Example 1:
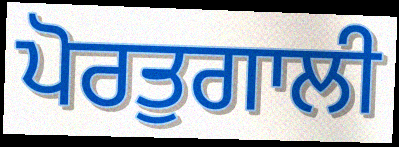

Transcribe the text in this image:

ਪੋਰਤੁਗਾਲੀ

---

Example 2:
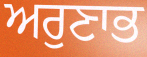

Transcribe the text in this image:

ਅਰੁਣਾਭ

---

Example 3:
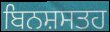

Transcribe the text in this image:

ਬਿਨਸ਼ਸਤਹ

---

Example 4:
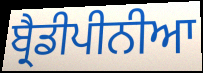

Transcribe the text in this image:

ਬ੍ਰੈਡੀਪੀਨੀਆ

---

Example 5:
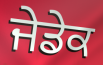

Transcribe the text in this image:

ਜੇਡੇਕ